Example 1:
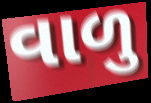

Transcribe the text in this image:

વાળુ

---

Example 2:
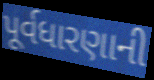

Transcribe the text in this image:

પૂર્વધારણાની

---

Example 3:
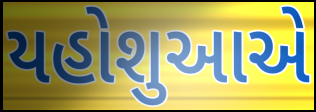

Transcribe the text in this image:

યહોશુઆએ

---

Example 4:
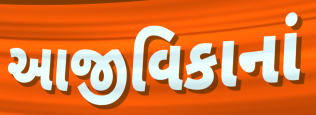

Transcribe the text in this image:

આજીવિકાનાં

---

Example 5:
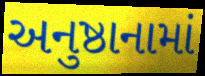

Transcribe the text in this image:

અનુષ્ઠાનામાં